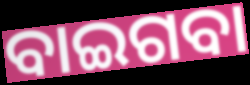
ବାଇଗବା